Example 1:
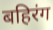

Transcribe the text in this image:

बहिरंग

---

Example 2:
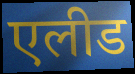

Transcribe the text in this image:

एलीड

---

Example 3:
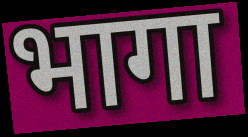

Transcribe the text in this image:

भागा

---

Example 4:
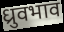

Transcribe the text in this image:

ध्रुवभाव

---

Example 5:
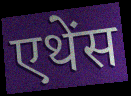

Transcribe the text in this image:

एथेंस